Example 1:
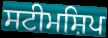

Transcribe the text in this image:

ਸਟੀਮਸ਼ਿਪ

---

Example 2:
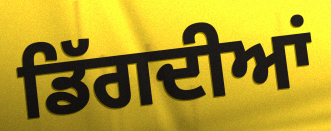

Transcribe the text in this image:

ਡਿੱਗਦੀਆਂ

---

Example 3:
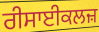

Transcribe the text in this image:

ਰੀਸਾਈਕਲਜ਼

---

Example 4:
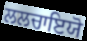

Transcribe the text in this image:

ਲਲਚਾਇਯੋ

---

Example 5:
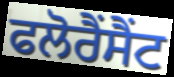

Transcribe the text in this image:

ਫਲੋਰੈਂਸੈਂਟ